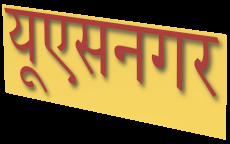
यूएसनगर